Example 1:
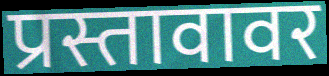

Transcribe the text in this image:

प्रस्तावावर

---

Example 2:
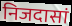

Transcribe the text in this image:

निजदासां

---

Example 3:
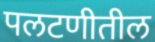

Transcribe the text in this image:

पलटणीतील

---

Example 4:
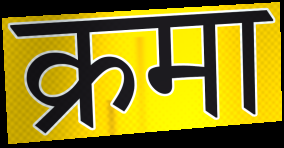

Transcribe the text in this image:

क्रमा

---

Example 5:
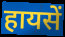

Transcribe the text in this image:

हायसें